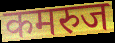
कमरुज